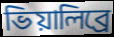
ভিয়ালিব্রে